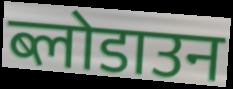
ब्लोडाउन